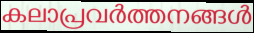
കലാപ്രവർത്തനങ്ങൾ